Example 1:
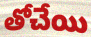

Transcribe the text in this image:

తోచేయి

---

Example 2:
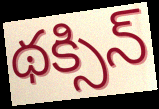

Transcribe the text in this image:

థక్సిన్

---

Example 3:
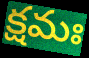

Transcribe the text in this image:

క్షమః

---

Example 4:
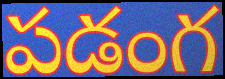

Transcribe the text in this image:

పడంగ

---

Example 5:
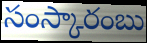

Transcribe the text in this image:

సంస్కారంబు